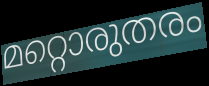
മറ്റൊരുതരം